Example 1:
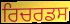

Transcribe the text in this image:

ਰਿਚਰਡਸ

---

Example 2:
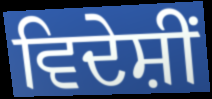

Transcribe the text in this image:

ਵਿਦੇਸ਼ੀਂ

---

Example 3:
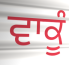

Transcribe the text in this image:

ਵਾਕੂੰ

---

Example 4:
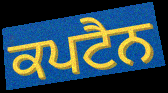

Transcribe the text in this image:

ਕਪਟੈਨ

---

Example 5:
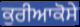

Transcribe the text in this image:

ਕੁਰੀਆਕੋਸੇ